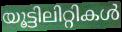
യൂട്ടിലിറ്റികൾ